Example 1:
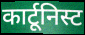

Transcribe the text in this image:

कार्टूनिस्ट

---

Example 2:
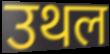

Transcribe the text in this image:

उथल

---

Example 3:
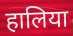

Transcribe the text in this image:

हालिया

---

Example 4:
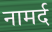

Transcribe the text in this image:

नामर्द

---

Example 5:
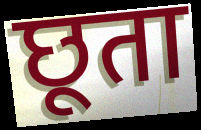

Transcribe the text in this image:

छूता